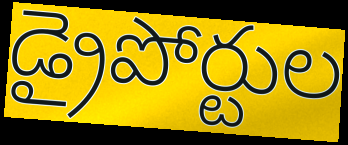
డ్రైపోర్టుల